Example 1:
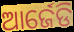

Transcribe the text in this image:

ଆର୍ଜେଡି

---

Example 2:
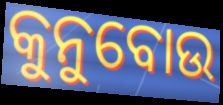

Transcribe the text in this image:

କୁନୁବୋଉ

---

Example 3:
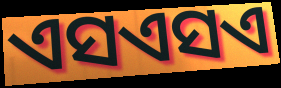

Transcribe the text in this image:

ଏସଏସଏ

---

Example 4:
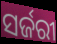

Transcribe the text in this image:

ସର୍ଜରୀ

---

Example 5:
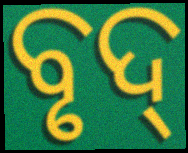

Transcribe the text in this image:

ବୃଦ୍